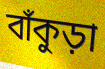
বাঁকুড়া